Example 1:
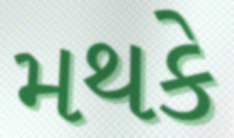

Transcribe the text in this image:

મથકે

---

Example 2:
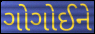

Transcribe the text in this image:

ગોગોઈને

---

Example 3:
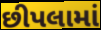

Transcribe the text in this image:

છીપલામાં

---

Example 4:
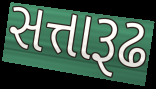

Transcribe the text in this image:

સત્તારૂઢ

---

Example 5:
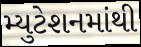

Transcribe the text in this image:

મ્યુટેશનમાંથી